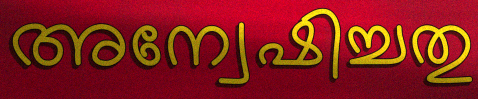
അന്വേഷിച്ചതു